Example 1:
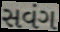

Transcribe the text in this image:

સવંગ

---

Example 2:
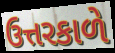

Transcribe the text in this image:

ઉત્તરકાળે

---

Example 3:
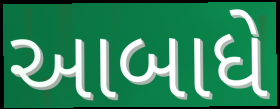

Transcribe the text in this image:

આબાધે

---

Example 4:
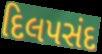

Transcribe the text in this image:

દિલપસંદ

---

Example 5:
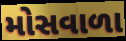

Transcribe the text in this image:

મોસવાળા